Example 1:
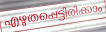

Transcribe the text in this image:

എഴുതപ്പെട്ടിരിക്കാം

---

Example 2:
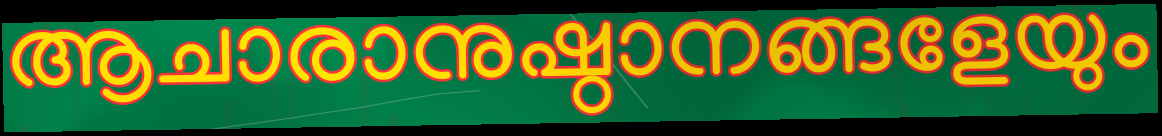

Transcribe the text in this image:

ആചാരാനുഷ്ഠാനങ്ങളേയും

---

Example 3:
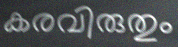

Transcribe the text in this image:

കരവിരുതും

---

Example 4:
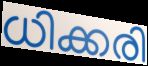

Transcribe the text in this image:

ധിക്കരി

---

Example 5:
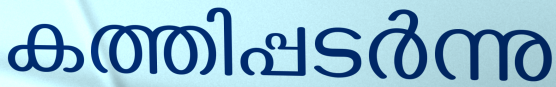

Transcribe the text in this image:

കത്തിപ്പടർന്നു